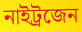
নাইট্রজেন